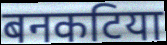
बनकटिया